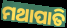
ମଥାପାତି